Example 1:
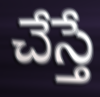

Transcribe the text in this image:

చేస్తే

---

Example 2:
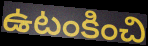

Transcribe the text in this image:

ఉటంకించి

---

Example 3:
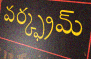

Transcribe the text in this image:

వర్క్ఫ్రమ్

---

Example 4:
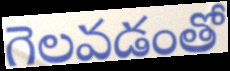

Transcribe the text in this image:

గెలవడంతో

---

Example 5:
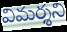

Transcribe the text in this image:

విమర్శని